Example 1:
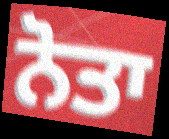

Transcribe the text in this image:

ਨੋਤਾ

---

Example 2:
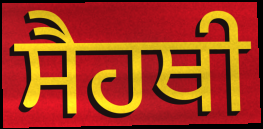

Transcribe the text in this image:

ਸੈਹਥੀ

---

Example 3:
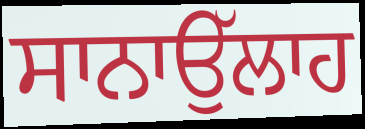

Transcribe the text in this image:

ਸਾਨਾਉੱਲਾਹ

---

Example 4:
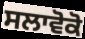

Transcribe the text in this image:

ਸਲਾਵੋਕੋ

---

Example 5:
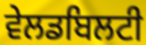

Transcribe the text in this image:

ਵੇਲਡਬਿਲਟੀ